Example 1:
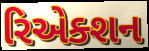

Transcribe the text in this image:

રિએક્શન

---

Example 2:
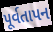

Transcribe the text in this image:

પૂર્વતાપન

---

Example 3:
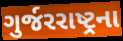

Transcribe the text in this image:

ગુર્જરરાષ્ટ્રના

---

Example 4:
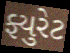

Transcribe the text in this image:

ફ્યુરેટ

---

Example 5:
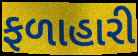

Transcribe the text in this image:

ફળાહારી